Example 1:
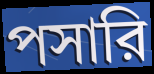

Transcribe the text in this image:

পসারি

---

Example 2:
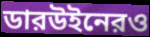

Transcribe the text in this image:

ডারউইনেরও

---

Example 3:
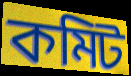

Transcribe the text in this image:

কমিট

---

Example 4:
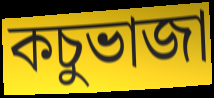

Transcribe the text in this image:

কচুভাজা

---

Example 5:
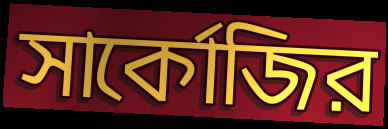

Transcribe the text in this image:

সার্কোজির